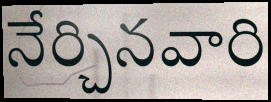
నేర్చినవారి